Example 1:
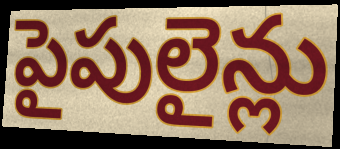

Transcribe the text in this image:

పైపులైన్లు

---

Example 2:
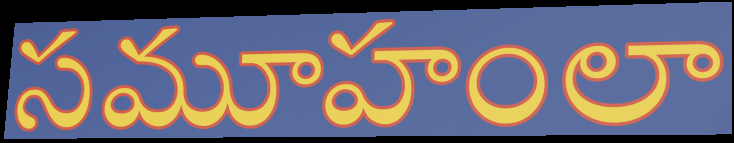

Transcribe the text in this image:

సమూహంలా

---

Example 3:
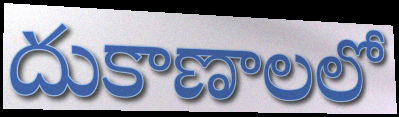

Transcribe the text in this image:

దుకాణాలలో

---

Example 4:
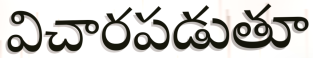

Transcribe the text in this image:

విచారపడుతూ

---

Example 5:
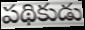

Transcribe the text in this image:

పథికుడు